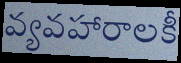
వ్యవహారాలకీ